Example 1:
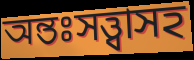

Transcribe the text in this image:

অন্তঃসত্ত্বাসহ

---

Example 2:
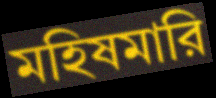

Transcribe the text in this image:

মহিষমারি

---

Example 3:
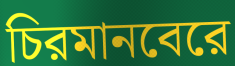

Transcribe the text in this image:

চিরমানবেরে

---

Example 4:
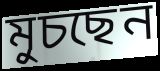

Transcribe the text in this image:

মুচছেন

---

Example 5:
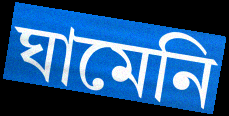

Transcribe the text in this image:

ঘামেনি